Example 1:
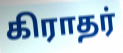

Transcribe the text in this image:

கிராதர்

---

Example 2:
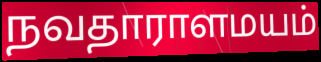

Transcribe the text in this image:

நவதாராளமயம்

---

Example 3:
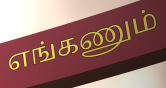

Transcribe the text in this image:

எங்கணும்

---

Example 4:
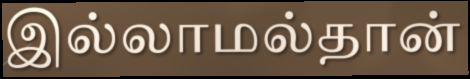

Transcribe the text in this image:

இல்லாமல்தான்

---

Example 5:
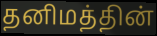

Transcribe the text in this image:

தனிமத்தின்